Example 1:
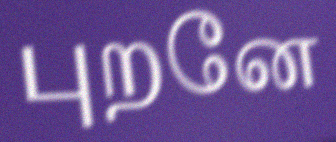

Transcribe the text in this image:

புறனே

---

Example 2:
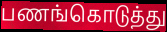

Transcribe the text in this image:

பணங்கொடுத்து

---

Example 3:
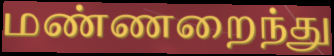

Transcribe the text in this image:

மண்ணறைந்து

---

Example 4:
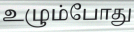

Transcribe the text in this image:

உழும்போது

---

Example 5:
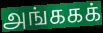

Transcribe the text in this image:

அங்ககக்